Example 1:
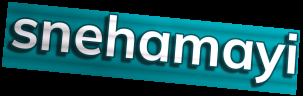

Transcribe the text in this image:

snehamayi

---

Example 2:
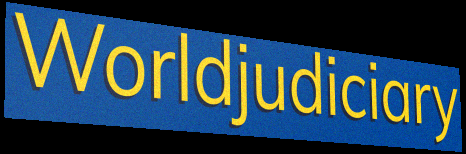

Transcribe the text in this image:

Worldjudiciary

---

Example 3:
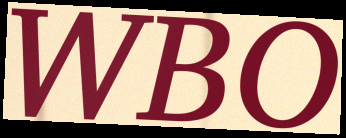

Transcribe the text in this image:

WBO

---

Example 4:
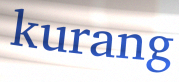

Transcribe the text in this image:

kurang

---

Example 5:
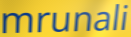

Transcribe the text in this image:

mrunali